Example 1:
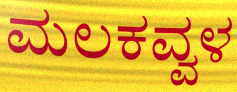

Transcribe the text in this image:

ಮಲಕವ್ವಳ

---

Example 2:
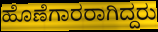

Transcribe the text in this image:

ಹೊಣೆಗಾರರಾಗಿದ್ದರು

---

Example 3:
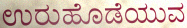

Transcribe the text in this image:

ಉರುಹೊಡೆಯುವ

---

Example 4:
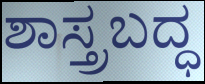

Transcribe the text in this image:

ಶಾಸ್ತ್ರಬದ್ಧ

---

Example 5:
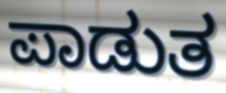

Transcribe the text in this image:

ಪಾಡುತ